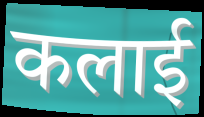
कलाई